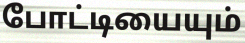
போட்டியையும்